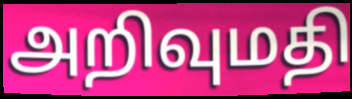
அறிவுமதி